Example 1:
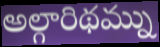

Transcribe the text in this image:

అల్గారిథమ్ను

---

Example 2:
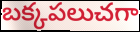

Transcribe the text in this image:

బక్కపలుచగా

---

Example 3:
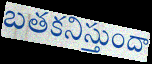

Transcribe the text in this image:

బతకనిస్తుందా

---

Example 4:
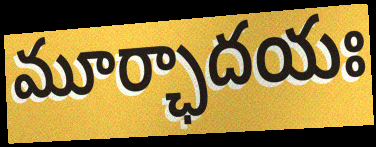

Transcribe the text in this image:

మూర్ఛాదయః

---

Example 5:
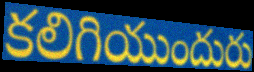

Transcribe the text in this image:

కలిగియుందురు